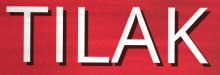
TILAK